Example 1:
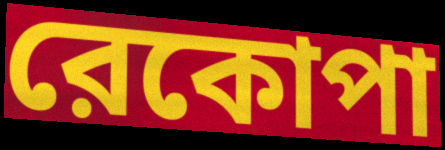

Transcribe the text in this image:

রেকোপা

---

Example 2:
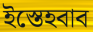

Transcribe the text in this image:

ইস্তেহবাব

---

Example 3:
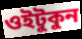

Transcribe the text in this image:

ওইটুকুন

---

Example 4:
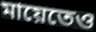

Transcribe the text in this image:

মায়েতেও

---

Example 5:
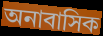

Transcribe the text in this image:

অনাবাসিক